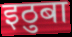
इठुबा